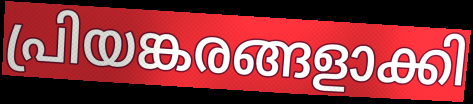
പ്രിയങ്കരങ്ങളാക്കി